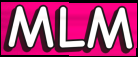
MLM